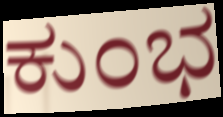
ಕುಂಭ